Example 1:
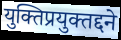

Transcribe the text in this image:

युक्तिप्रयुक्तद्दने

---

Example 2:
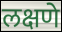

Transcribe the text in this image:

लक्षणे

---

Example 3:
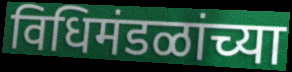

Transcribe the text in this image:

विधिमंडळांच्या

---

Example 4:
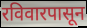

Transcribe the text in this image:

रविवारपासून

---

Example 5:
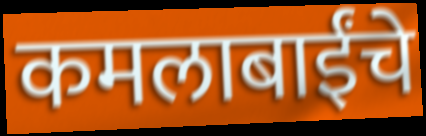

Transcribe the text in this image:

कमलाबाईंचे